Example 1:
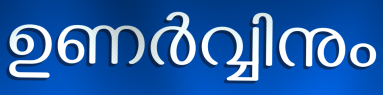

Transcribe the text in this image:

ഉണർവ്വിനും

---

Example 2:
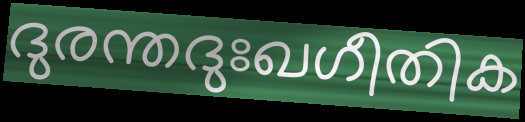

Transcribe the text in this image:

ദുരന്തദുഃഖഗീതിക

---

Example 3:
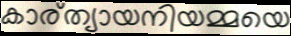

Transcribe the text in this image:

കാര്ത്യായനിയമ്മയെ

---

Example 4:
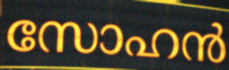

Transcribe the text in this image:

സോഹൻ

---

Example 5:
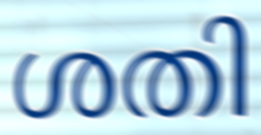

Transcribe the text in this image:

ശതി